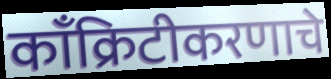
काँक्रिटीकरणाचे